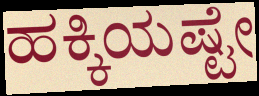
ಹಕ್ಕಿಯಷ್ಟೇ